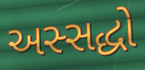
અસ્સદ્ધો